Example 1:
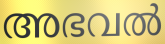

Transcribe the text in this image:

അഭവൽ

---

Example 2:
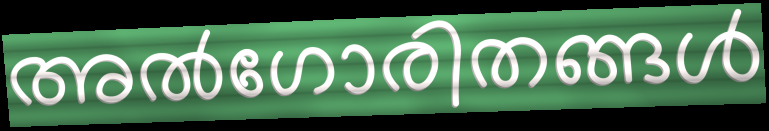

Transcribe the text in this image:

അൽഗോരിതങ്ങൾ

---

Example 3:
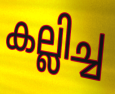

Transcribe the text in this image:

കല്ലിച്ച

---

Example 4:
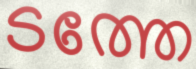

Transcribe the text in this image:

ടത്തേ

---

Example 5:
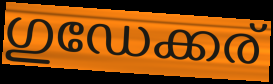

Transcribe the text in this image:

ഗുഡേക്കര്